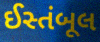
ઈસ્તંબૂલ